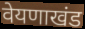
वेयणाखंड